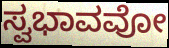
ಸ್ವಭಾವವೋ